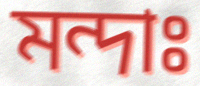
মন্দাঃ